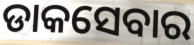
ଡାକସେବାର